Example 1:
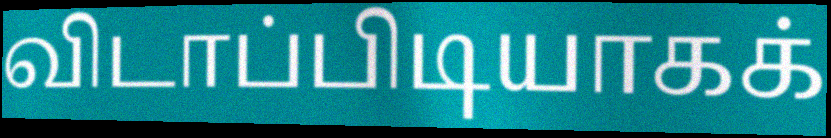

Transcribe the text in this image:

விடாப்பிடியாகக்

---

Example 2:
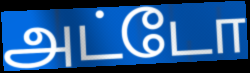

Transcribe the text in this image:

அட்டோ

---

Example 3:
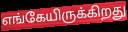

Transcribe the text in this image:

எங்கேயிருக்கிறது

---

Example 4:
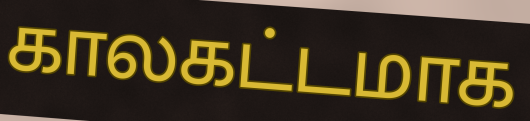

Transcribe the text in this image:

காலகட்டமாக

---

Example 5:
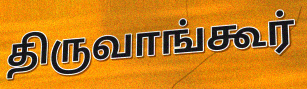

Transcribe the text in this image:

திருவாங்கூர்